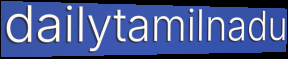
dailytamilnadu